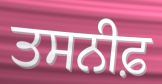
ਤਸਨੀਫ਼